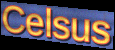
Celsus